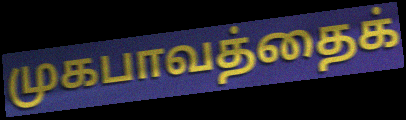
முகபாவத்தைக்